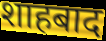
शाहबाद